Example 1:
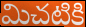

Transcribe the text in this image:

మిచటికి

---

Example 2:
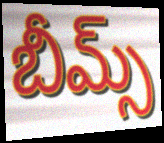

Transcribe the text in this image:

బీమ్స్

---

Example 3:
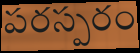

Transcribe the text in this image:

పరస్పరం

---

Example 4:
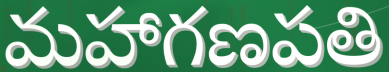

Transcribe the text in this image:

మహాగణపతి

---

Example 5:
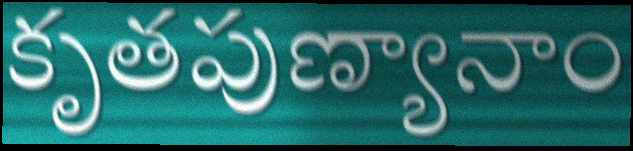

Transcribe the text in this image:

కృతపుణ్యానాం